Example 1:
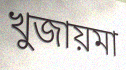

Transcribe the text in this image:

খুজায়মা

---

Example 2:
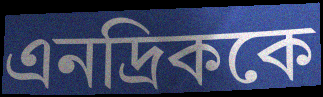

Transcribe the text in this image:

এনদ্রিককে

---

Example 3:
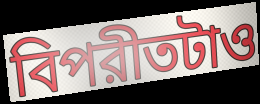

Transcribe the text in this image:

বিপরীতটাও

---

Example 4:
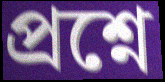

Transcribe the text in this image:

প্রশ্নে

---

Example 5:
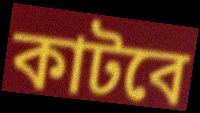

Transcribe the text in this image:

কাটবে